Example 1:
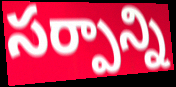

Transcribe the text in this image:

సర్పాన్ని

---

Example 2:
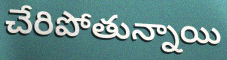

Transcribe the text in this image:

చేరిపోతున్నాయి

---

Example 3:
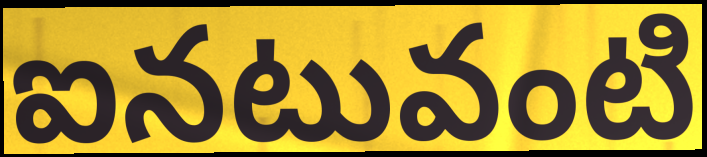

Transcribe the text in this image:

ఐనటువంటి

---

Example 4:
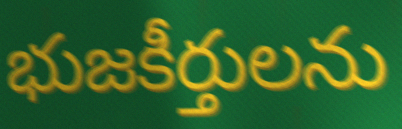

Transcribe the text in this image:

భుజకీర్తులను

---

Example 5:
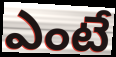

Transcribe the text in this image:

ఎంటే